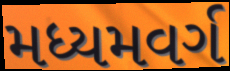
મધ્યમવર્ગ